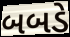
બબડે